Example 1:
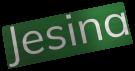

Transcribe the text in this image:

Jesina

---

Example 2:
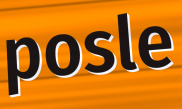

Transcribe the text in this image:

posle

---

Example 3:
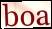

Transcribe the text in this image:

boa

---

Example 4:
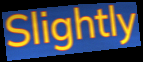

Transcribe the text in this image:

Slightly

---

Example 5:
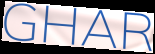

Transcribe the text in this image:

GHAR